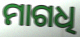
ମାଗଧି